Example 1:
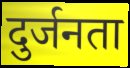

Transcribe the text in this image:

दुर्जनता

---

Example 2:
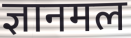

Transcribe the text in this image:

ज्ञानमल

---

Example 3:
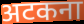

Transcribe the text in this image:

अटकना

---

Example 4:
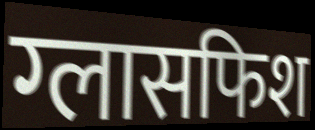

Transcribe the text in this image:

ग्लासफिश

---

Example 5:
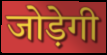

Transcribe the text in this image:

जोड़ेगी